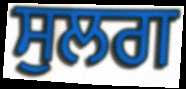
ਸੁਲਗ